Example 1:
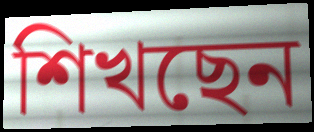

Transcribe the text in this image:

শিখছেন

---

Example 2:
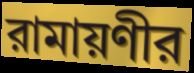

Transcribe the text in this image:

রামায়ণীর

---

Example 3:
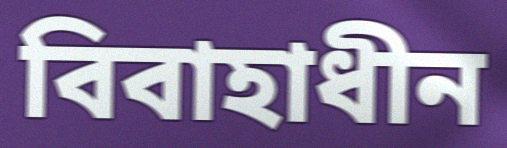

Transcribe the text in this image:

বিবাহাধীন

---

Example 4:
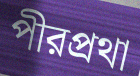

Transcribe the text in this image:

পীরপ্রথা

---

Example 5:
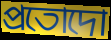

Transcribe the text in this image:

প্রতোদো